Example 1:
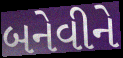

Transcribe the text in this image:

બનેવીને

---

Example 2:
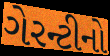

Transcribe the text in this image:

ગેરન્ટીનો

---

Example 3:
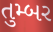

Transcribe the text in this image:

તુમ્બર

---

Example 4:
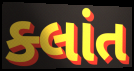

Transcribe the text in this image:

ક્લાંત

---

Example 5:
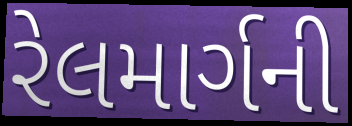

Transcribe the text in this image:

રેલમાર્ગની